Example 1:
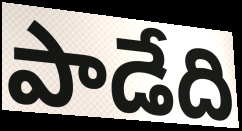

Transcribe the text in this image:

పాడేది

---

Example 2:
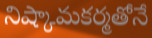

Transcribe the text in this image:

నిష్కామకర్మతోనే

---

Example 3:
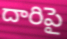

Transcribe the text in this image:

దారిపై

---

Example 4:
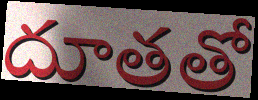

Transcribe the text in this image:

దూతతో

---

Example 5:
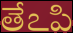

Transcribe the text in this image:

తేఽపి